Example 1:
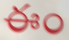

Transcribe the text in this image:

ఈం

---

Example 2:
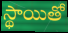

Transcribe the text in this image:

స్థాయితో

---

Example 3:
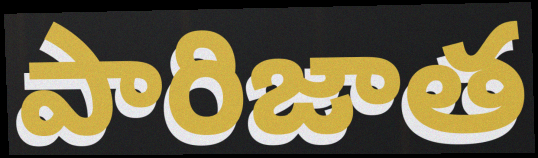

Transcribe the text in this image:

పారిజాత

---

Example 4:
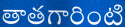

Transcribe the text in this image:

తాతగారింటి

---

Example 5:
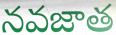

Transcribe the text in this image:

నవజాత